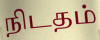
நிடதம்